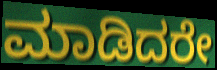
ಮಾಡಿದರೇ